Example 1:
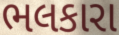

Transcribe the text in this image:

ભલકારા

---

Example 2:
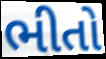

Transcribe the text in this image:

ભીતો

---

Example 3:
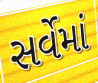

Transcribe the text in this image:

સર્વેમાં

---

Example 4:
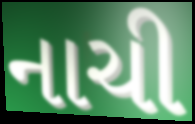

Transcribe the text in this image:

નાચી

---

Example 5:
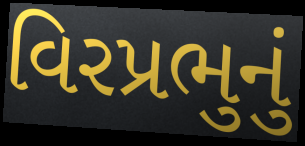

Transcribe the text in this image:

વિરપ્રભુનું